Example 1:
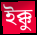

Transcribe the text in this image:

ইক্কু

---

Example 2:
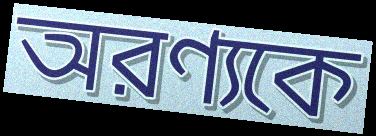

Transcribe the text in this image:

অরণ্যকে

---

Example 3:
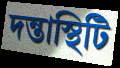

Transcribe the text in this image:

দন্তাস্থিটি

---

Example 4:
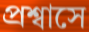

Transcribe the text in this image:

প্রশ্বাসে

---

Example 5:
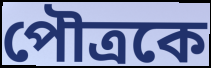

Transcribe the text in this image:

পৌত্রকে